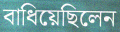
বাধিয়েছিলেন